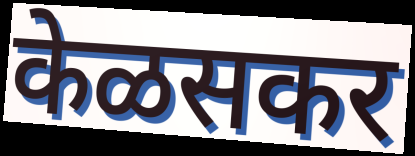
केळसकर